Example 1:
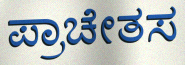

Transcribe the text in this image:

ಪ್ರಾಚೇತಸ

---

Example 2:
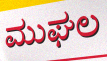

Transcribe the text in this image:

ಮುಘಲ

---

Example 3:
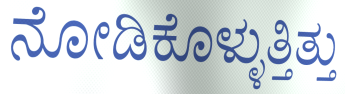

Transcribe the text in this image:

ನೋಡಿಕೊಳ್ಳುತ್ತಿತ್ತು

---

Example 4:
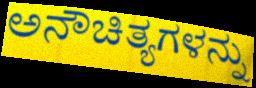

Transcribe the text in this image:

ಅನೌಚಿತ್ಯಗಳನ್ನು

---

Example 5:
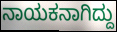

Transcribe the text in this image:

ನಾಯಕನಾಗಿದ್ದು